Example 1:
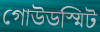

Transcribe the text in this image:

গোউডস্মিট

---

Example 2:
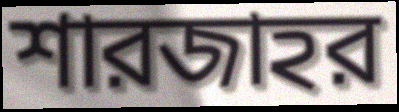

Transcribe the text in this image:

শারজাহর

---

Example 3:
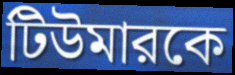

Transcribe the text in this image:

টিউমারকে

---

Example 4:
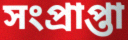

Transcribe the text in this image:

সংপ্রাপ্তা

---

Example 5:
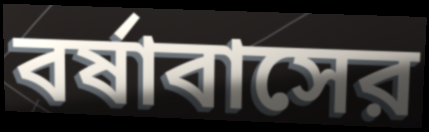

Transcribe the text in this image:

বর্ষাবাসের